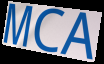
MCA